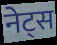
नेट्स